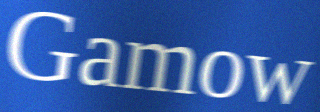
Gamow